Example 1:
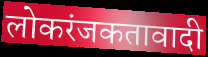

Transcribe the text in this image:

लोकरंजकतावादी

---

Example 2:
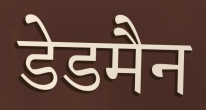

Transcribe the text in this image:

डेडमैन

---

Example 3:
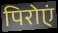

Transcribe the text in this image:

पिरोएं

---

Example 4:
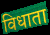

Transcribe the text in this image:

विधाता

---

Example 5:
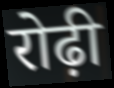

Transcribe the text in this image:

रोढ़ी